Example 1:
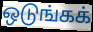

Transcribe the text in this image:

ஒடுங்கக்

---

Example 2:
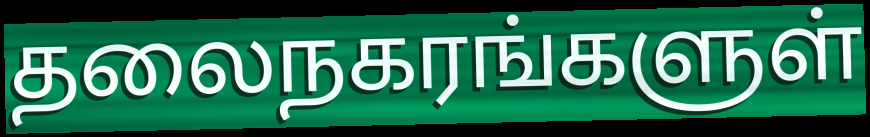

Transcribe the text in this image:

தலைநகரங்களுள்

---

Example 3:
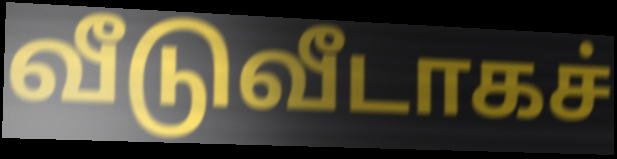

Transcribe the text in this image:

வீடுவீடாகச்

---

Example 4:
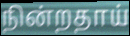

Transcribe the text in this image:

நின்றதாய்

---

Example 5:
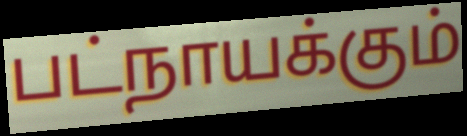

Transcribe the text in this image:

பட்நாயக்கும்